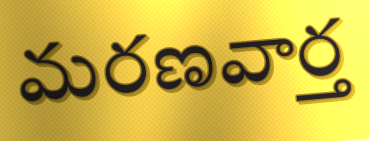
మరణవార్త